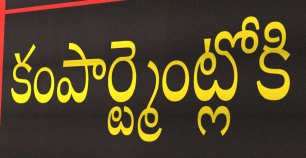
కంపార్ట్మెంట్లోకి